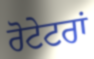
ਰੋਟੇਟਰਾਂ